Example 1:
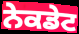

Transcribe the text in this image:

ਨੇਕਡੇਟ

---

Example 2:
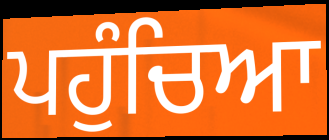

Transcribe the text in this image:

ਪਹੁੰਚਿਆ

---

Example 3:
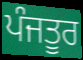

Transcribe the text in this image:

ਪੰਜਤੂਰ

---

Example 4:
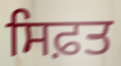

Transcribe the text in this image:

ਸਿਫ਼ਤ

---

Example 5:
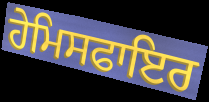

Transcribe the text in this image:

ਹੇਮਿਸਫਾਇਰ